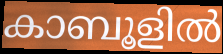
കാബൂളിൽ